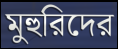
মুহুরিদের